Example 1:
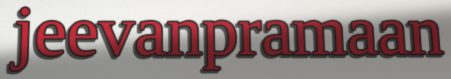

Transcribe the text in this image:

jeevanpramaan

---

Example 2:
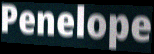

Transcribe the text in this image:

Penelope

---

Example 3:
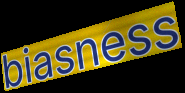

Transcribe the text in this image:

biasness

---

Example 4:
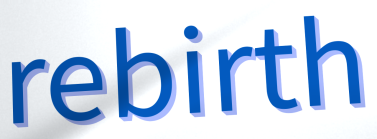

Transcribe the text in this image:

rebirth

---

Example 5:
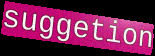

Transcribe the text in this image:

suggetion